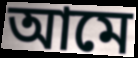
আমে